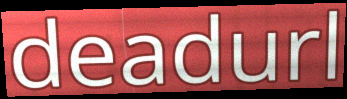
deadurl